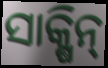
ସାକ୍ଷିନ୍